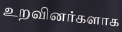
உறவினர்களாக